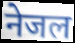
नेजल